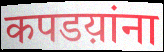
कपडय़ांना